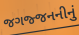
જગજ્જનનીનું